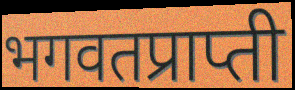
भगवतप्राप्ती